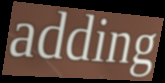
adding